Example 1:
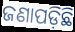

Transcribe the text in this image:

ଜଣାପଡ଼ିଛି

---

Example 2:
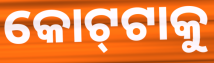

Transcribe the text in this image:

କୋଟ୍‌ଟାକୁ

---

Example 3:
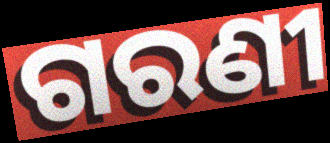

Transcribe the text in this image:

ଗରଣୀ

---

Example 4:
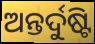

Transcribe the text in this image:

ଅନ୍ତର୍ଦୁଷ୍ଟି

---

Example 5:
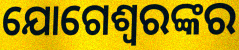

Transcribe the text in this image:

ଯୋଗେଶ୍ଵରଙ୍କର